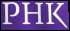
PHK